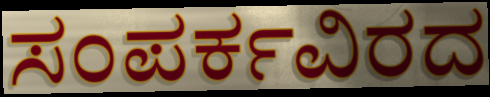
ಸಂಪರ್ಕವಿರದ